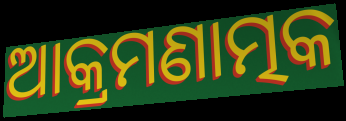
ଆକ୍ରମଣାତ୍ମକ